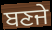
ਬਣਜੇ